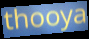
thooya